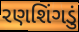
રણશિંગડું